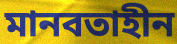
মানবতাহীন